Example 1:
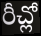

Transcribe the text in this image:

రీచ్లో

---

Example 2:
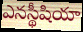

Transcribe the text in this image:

ఎనస్థీషియా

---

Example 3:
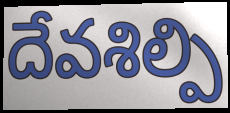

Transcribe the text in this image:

దేవశిల్పి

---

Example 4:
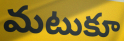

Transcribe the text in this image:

మటుకూ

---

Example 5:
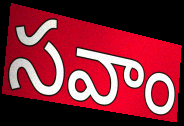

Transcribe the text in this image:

సవాం